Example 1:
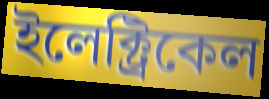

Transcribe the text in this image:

ইলেক্ট্রিকেল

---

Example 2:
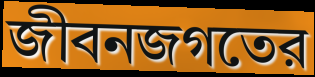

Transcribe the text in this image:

জীবনজগতের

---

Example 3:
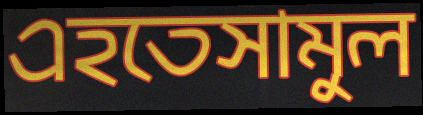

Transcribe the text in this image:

এহতেসামুল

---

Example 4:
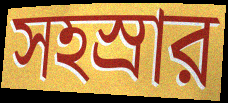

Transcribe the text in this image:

সহস্রার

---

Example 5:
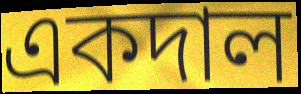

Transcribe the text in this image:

একদাল